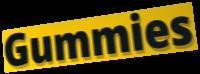
Gummies